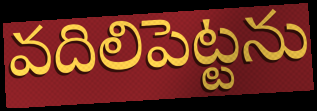
వదిలిపెట్టను